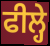
ਫੀਲ੍ਹੇ